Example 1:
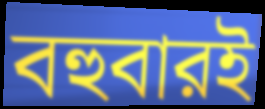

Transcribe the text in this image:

বহুবারই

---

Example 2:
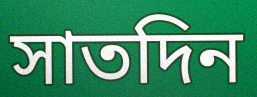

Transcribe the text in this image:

সাতদিন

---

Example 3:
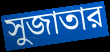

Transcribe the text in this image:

সুজাতার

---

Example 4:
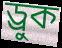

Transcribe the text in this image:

ড্রুক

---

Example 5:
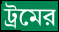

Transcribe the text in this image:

ট্রমের